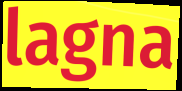
lagna